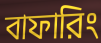
বাফারিং